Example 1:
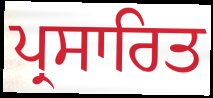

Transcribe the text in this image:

ਪ੍ਰਸਾਰਿਤ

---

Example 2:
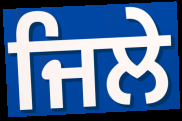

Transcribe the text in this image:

ਜਿਲੇ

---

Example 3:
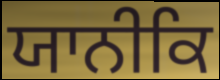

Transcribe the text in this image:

ਯਾਨੀਕਿ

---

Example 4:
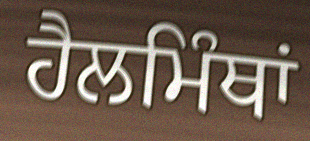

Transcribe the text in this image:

ਹੈਲਮਿੰਥਾਂ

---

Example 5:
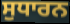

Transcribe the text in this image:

ਸੁਧਾਰਨ